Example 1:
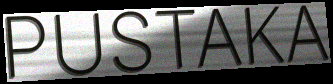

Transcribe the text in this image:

PUSTAKA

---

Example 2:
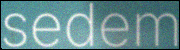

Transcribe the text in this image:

sedem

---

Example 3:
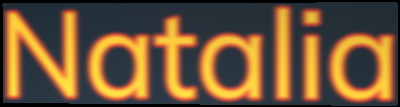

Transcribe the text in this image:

Natalia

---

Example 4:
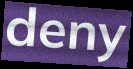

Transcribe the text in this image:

deny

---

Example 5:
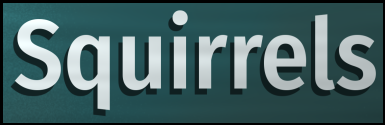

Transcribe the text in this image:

Squirrels